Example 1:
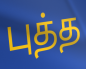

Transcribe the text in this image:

புத்த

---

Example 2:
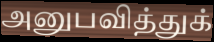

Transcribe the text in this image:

அனுபவித்துக்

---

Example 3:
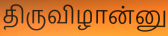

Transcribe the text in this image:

திருவிழான்னு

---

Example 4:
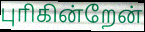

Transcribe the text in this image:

புரிகின்றேன்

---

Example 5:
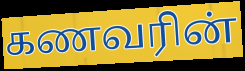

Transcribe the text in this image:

கணவரின்